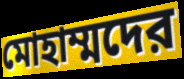
মোহাম্মদের